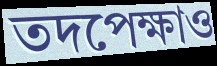
তদপেক্ষাও